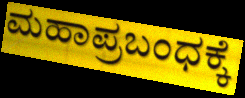
ಮಹಾಪ್ರಬಂಧಕ್ಕೆ